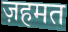
ज़हमत